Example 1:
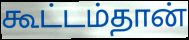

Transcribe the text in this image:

கூட்டம்தான்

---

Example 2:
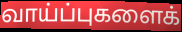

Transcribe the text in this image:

வாய்ப்புகளைக்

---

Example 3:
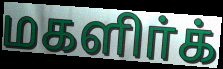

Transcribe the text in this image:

மகளிர்க்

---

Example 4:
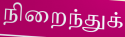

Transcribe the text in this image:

நிறைந்துக்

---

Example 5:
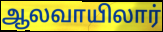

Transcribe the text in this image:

ஆலவாயிலார்